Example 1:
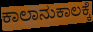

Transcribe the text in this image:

ಕಾಲಾನುಕಾಲಕ್ಕೆ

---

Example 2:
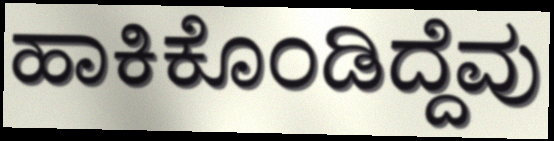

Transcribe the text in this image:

ಹಾಕಿಕೊಂಡಿದ್ದೆವು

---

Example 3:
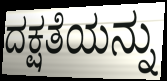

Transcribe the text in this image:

ದಕ್ಷತೆಯನ್ನು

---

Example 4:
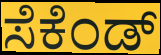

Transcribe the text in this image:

ಸೆಕೆಂಡ್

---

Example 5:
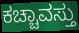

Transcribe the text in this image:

ಕಚ್ಚಾವಸ್ತು